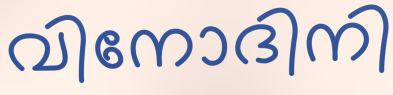
വിനോദിനി